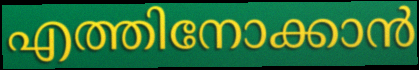
എത്തിനോക്കാൻ